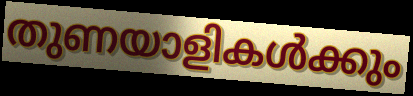
തുണയാളികൾക്കും